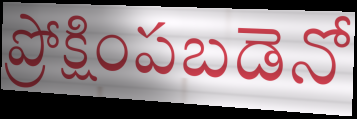
ప్రోక్షింపబడెనో